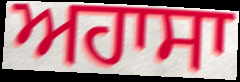
ਅਹਾਸਾ